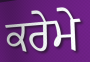
ਕਰੇਮੇ